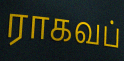
ராகவப்